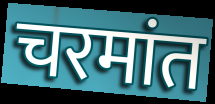
चरमांत